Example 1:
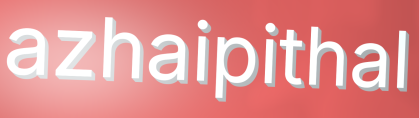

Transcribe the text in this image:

azhaipithal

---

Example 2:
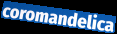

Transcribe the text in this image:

coromandelica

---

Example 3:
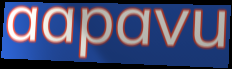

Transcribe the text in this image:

aapavu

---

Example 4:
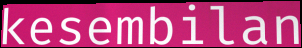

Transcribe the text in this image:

kesembilan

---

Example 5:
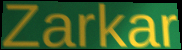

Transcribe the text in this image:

Zarkar